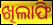
ଖିଲାଫି